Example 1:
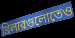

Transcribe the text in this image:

থ্রিলারগুলোতেও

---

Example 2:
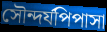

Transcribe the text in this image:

সৌন্দর্যপিপাসা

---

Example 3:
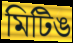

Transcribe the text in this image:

মিটিঙ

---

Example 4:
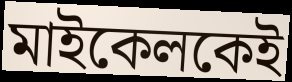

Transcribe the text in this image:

মাইকেলকেই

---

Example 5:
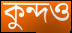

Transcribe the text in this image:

কুন্দও